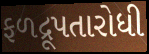
ફળદ્રૂપતારોધી